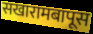
सखारामबापूस